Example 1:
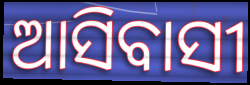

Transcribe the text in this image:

ଆସିବାସୀ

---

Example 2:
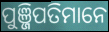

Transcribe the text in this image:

ପୁଞ୍ଜିପତିମାନେ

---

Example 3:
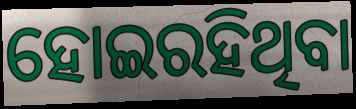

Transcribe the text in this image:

ହୋଇରହିଥିବା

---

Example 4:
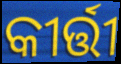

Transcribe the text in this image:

କୀର୍ତ୍ତୀ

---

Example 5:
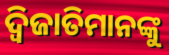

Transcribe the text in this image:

ଦ୍ୱିଜାତିମାନଙ୍କୁ